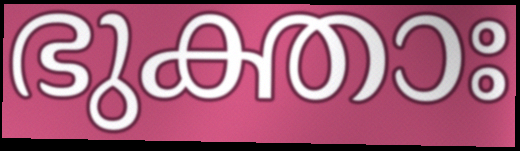
ഭുക്താഃ